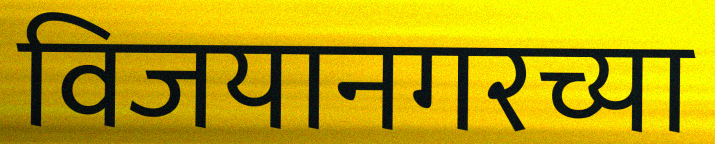
विजयानगरच्या